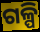
ଗଳ୍ପି